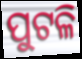
ପୁଟଳି